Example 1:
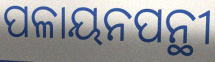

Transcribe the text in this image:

ପଳାୟନପନ୍ଥୀ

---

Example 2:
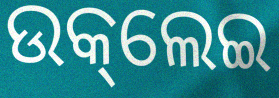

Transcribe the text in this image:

ଉକ୍‌ଲେଇ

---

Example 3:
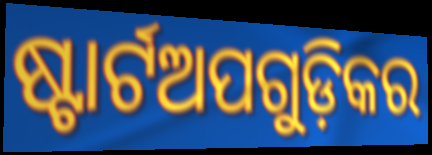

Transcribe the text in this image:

ଷ୍ଟାର୍ଟଅପଗୁଡ଼ିକର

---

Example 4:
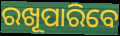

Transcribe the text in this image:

ରଖୂପାରିବେ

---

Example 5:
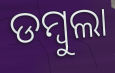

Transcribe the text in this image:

ଡମ୍ୱୁଲା